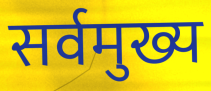
सर्वमुख्य